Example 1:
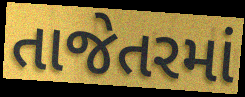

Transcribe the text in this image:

તાજેતરમાં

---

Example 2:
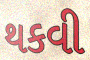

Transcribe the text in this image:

થકવી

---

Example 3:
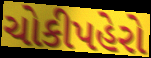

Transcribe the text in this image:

ચોકીપહેરો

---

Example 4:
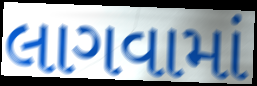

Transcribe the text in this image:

લાગવામાં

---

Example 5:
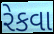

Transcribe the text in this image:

રેકવા